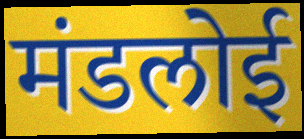
मंडलोई